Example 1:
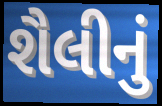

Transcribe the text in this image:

શૈલીનું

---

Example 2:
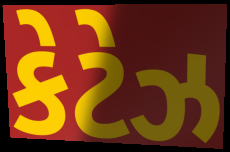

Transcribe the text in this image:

કેટેઝ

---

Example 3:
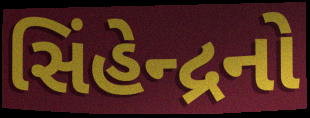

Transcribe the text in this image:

સિંહેન્દ્રનો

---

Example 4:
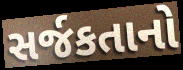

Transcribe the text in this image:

સર્જકતાનો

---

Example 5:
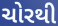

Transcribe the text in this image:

ચોરથી